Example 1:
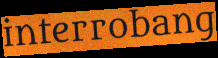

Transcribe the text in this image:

interrobang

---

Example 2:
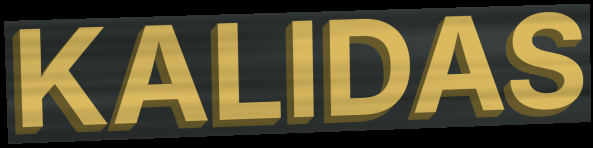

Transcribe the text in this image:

KALIDAS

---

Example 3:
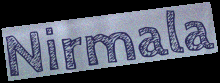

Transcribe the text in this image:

Nirmala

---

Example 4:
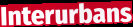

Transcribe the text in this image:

Interurbans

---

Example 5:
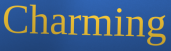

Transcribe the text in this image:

Charming